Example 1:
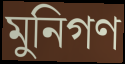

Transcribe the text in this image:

মুনিগণ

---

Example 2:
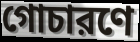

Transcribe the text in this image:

গোচারণে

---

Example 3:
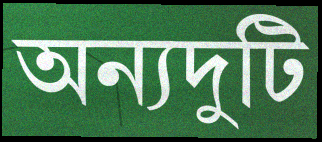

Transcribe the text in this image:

অন্যদুটি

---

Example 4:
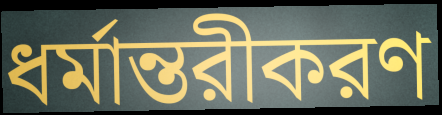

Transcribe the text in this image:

ধর্মান্তরীকরণ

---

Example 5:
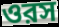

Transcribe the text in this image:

ওরস